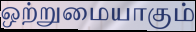
ஒற்றுமையாகும்